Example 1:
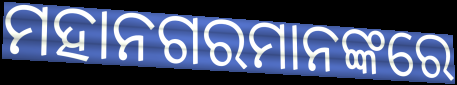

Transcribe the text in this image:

ମହାନଗରମାନଙ୍କରେ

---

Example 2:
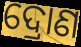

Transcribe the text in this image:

ଦ୍ରୋଣ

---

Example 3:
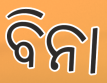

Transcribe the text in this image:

ବିନା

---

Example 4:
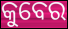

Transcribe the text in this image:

କୁବେର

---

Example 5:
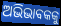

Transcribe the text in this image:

ଅଭିଭାବକକୁ